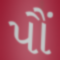
પૌં